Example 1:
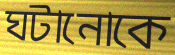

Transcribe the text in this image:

ঘটানোকে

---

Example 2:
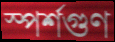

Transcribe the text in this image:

স্পর্শগুণ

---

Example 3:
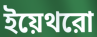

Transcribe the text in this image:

ইয়েথরো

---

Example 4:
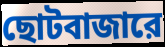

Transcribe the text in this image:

ছোটবাজারে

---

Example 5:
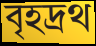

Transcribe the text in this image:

বৃহদ্রথ